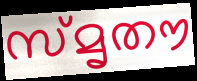
സ്മൃതൗ